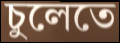
চুলেতে